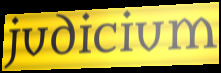
judicium